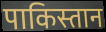
पाकिस्तान